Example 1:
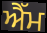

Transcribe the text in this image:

ਐੈੱਮ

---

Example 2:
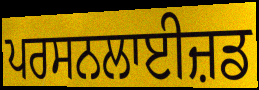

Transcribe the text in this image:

ਪਰਸਨਲਾਈਜ਼ਡ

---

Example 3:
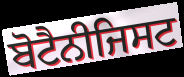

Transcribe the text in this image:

ਬੋਟੈਨੀਜਿਸਟ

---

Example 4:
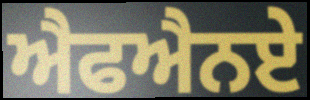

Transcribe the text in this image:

ਐਫਐਨਏ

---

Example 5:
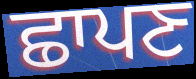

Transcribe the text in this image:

ਛਾਪਣ